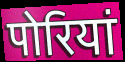
पोरियां